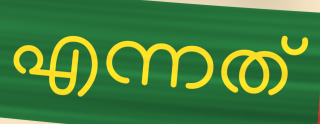
എന്നത്